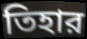
তিহার